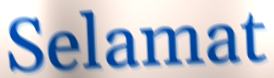
Selamat